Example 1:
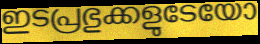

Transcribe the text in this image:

ഇടപ്രഭുക്കളുടേയോ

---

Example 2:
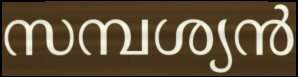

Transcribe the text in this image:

സമ്പശ്യൻ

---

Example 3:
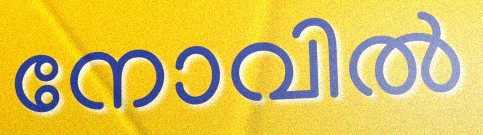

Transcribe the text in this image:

നോവിൽ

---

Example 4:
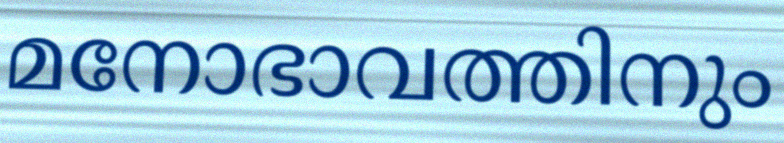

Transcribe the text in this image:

മനോഭാവത്തിനും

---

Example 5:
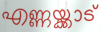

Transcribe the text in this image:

എണ്ണയ്ക്കാട്